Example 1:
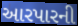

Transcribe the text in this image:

આરપારની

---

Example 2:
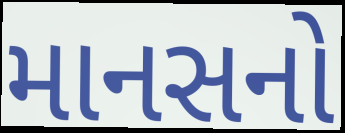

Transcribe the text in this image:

માનસનો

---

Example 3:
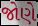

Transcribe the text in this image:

જોણે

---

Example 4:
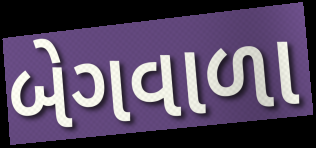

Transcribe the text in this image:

બેગવાળા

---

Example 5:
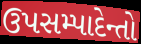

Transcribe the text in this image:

ઉપસમ્પાદેન્તો